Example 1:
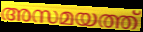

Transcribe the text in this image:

അസമയത്ത്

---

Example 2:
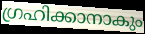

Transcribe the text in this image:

ഗ്രഹിക്കാനാകും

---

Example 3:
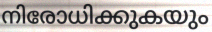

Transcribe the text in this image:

നിരോധിക്കുകയും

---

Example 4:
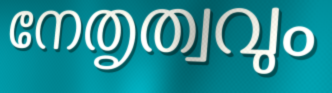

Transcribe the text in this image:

നേതൃത്വവും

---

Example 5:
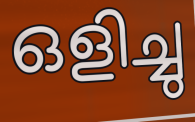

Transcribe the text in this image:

ഒളിച്ചു